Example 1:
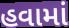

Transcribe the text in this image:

હવામાં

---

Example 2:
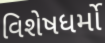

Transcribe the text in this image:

વિશેષધર્મો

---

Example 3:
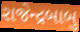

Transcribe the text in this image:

રાજેન્દ્રબાબુ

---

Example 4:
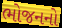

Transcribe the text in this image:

ભોજનનો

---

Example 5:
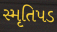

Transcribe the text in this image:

સ્મૃતિપડ